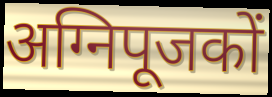
अग्निपूजकों